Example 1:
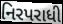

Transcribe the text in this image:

નિરપરાધી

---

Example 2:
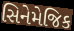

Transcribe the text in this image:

સિનેમેજિક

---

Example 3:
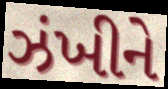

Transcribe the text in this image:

ઝંખીને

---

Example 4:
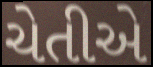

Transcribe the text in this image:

ચેતીએ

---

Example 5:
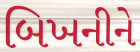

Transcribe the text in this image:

બિખનીને